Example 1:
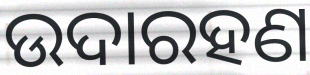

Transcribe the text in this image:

ଉଦାରହଣ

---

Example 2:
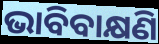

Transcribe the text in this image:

ଭାବିବାକ୍ଷଣି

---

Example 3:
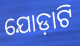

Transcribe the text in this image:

ଯୋଡ଼ାଟି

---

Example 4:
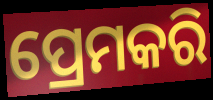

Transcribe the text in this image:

ପ୍ରେମକରି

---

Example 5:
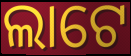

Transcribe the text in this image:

ଲାଟେ